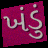
ખંડું